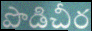
పొడిచీర